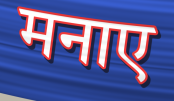
मनाए